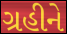
ગ્રહીને